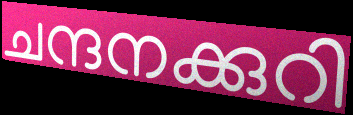
ചന്ദനക്കുറി